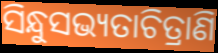
ସିନ୍ଧୁସଭ୍ୟତାଚିତ୍ରାଣି